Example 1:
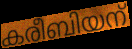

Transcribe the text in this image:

കരീബിയന്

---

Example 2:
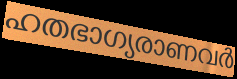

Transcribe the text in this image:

ഹതഭാഗ്യരാണവർ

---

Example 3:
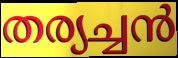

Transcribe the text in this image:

തര്യച്ചൻ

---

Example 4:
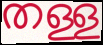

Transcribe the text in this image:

തള്ള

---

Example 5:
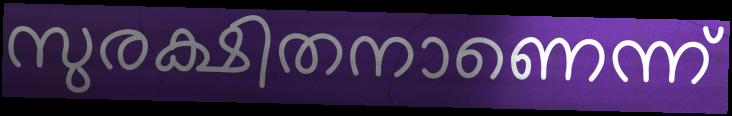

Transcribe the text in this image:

സുരക്ഷിതനാണെന്ന്